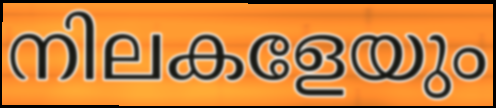
നിലകളേയും